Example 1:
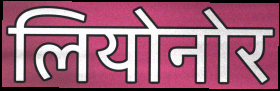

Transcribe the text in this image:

लियोनोर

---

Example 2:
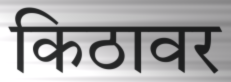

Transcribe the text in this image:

किठावर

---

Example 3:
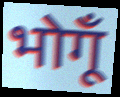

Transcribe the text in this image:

भोगूँ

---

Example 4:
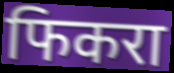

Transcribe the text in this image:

फिकरा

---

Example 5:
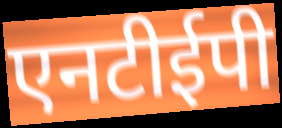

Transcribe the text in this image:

एनटीईपी